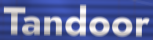
Tandoor